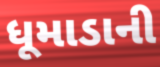
ધૂમાડાની